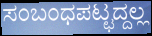
ಸಂಬಂಧಪಟ್ಟದ್ದಲ್ಲ